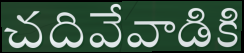
చదివేవాడికి